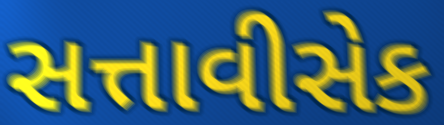
સત્તાવીસેક